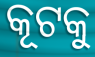
କୂଟକୁ